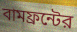
বামফ্রন্টের